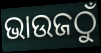
ଭାଉଜଠୁଁ